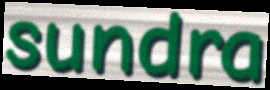
sundra